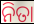
ନିତା